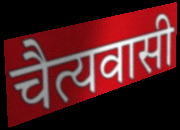
चैत्यवासी